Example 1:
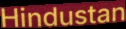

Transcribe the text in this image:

Hindustan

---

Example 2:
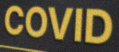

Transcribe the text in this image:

COVID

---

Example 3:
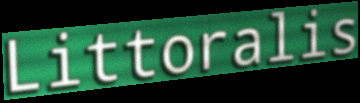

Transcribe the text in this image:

Littoralis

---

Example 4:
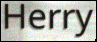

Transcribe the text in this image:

Herry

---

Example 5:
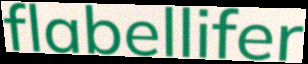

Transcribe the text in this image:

flabellifer